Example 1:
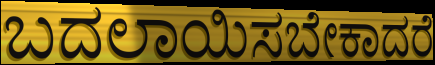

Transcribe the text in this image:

ಬದಲಾಯಿಸಬೇಕಾದರೆ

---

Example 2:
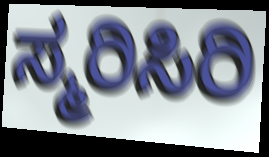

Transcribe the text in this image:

ಸ್ಮರಿಸಿರಿ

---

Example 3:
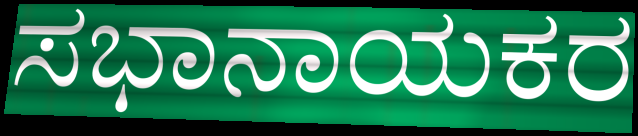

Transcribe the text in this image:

ಸಭಾನಾಯಕರ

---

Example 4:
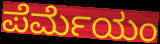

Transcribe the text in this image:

ಪೆರ್ಮೆಯಂ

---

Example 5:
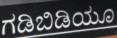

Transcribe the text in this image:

ಗಡಿಬಿಡಿಯೂ